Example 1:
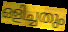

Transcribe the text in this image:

ഒളിച്ചതും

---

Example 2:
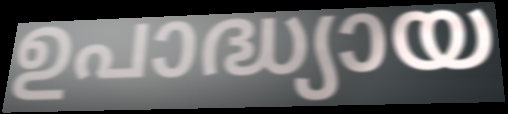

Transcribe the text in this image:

ഉപാദ്ധ്യായ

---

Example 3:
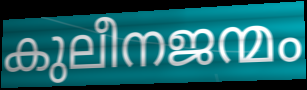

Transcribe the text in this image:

കുലീനജന്മം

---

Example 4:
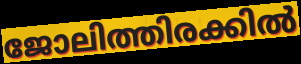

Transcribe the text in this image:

ജോലിത്തിരക്കിൽ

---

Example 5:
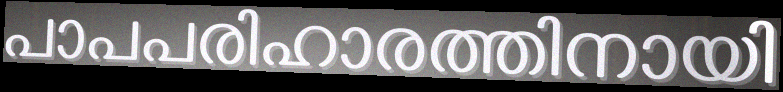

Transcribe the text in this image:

പാപപരിഹാരത്തിനായി